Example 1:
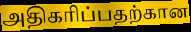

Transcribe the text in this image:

அதிகரிப்பதற்கான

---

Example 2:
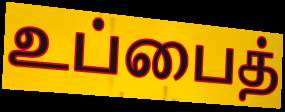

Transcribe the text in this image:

உப்பைத்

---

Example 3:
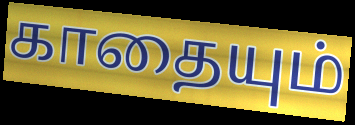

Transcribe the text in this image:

காதையும்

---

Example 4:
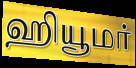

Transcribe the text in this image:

ஹியூமர்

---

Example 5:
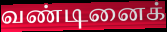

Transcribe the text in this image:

வண்டினைக்